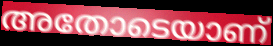
അതോടെയാണ്